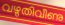
വഴുതിവീണു